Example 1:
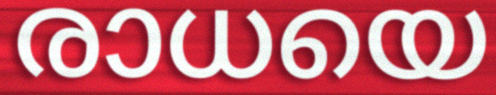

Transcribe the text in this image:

രാധയെ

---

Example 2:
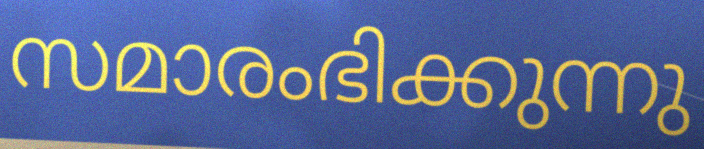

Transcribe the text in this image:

സമാരംഭിക്കുന്നു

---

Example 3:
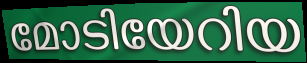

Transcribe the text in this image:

മോടിയേറിയ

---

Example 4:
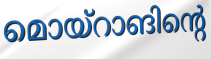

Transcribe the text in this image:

മൊയ്റാങിന്റെ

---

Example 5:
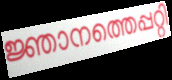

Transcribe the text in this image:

ജ്ഞാനത്തെപ്പറ്റി